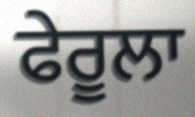
ਫੇਰੂਲਾ